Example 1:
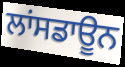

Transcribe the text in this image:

ਲਾਂਸਡਾਊਨ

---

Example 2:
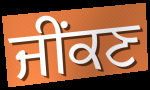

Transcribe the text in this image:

ਜੀਂਕਣ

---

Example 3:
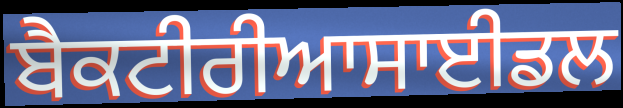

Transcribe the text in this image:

ਬੈਕਟੀਰੀਆਸਾਈਡਲ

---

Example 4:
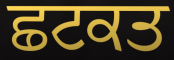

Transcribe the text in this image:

ਛਟਕਤ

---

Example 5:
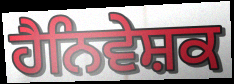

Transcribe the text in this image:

ਹੈਨਿਵੇਸ਼ਕ